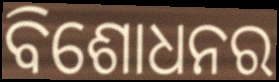
ବିଶୋଧନର